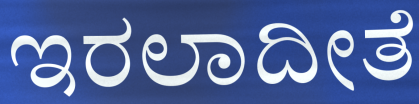
ಇರಲಾದೀತೆ